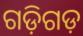
ଗଡ଼ିଗଡ଼